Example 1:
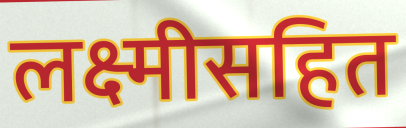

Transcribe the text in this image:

लक्ष्मीसहित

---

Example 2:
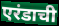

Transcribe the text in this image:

एरंडाची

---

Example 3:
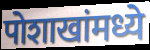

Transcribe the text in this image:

पोशाखांमध्ये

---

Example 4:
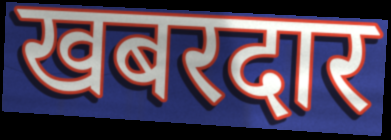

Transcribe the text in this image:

खबरदार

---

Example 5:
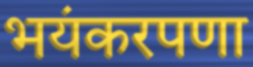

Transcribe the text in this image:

भयंकरपणा